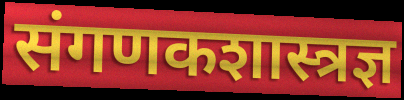
संगणकशास्त्रज्ञ